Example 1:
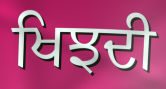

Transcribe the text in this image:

ਖਿਝਦੀ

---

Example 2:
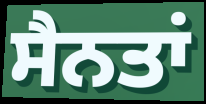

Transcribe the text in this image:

ਸੈਨਤਾਂ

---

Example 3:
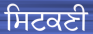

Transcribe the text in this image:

ਸਿਟਕਣੀ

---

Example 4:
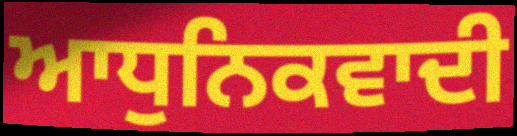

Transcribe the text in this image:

ਆਧੁਨਿਕਵਾਦੀ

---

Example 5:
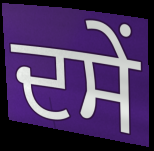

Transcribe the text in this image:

ਦਸੇਂ